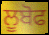
ਲੂਬੋਫ